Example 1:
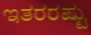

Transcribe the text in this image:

ಇತರರಷ್ಟು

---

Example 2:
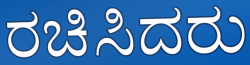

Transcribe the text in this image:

ರಚಿಸಿದರು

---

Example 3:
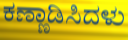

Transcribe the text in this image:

ಕಣ್ಣಾಡಿಸಿದಳು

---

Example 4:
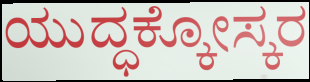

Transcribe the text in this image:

ಯುದ್ಧಕ್ಕೋಸ್ಕರ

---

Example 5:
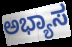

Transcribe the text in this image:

ಅಭ್ಯಾಸ